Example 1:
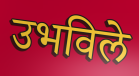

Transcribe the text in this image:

उभविले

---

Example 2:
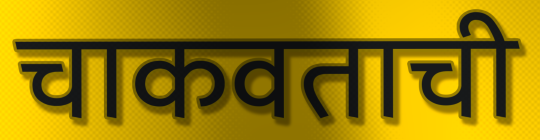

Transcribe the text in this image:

चाकवताची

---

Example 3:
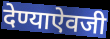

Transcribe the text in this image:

देण्याऐवजी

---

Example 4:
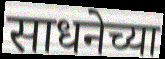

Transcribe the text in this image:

साधनेच्या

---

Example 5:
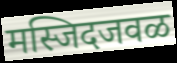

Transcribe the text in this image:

मस्जिदजवळ